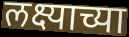
लक्ष्याच्या